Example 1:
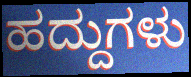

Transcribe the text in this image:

ಹದ್ದುಗಳು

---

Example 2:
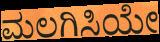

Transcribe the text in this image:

ಮಲಗಿಸಿಯೇ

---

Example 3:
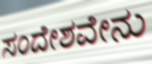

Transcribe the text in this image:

ಸಂದೇಶವೇನು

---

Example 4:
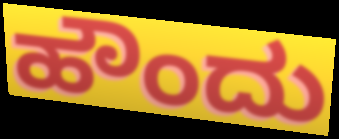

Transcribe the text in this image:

ಹೌಂದು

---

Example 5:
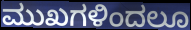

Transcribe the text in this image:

ಮುಖಗಳಿಂದಲೂ